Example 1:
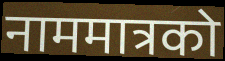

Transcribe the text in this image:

नाममात्रको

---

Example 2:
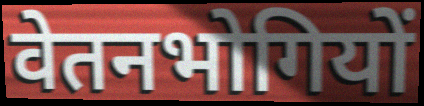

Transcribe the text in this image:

वेतनभोगियों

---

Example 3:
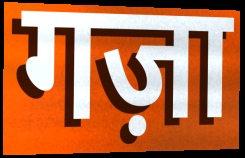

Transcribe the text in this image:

गज़ा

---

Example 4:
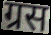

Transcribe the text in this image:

ग्रस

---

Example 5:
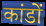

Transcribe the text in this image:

कांडों